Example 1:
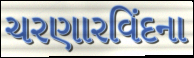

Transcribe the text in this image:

ચરણારવિંદના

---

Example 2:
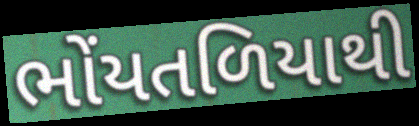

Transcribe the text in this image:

ભોંયતળિયાથી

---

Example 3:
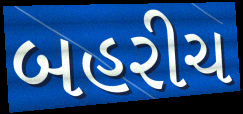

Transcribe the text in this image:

બહરીચ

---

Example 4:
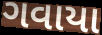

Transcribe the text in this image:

ગવાયા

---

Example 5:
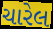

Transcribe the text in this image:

ચારેલ